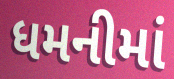
ધમનીમાં